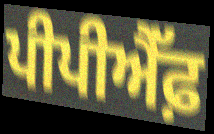
ਪੀਪੀਐੱਫ਼